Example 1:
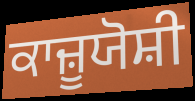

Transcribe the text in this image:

ਕਾਜ਼ੂਯੋਸ਼ੀ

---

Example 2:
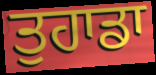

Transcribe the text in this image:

ਤੁਹਾਡਾ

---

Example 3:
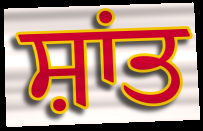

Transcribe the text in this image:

ਸ਼ਾਂਤ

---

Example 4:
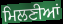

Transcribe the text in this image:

ਮਿਲਣੀਆਂ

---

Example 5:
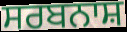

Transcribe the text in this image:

ਸਰਬਨਾਸ਼